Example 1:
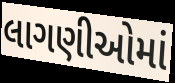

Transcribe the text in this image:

લાગણીઓમાં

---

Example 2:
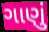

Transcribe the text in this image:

ગાણું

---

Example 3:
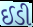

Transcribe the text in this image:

ઈડી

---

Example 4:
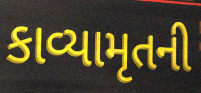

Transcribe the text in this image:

કાવ્યામૃતની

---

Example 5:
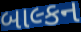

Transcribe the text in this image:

બાલ્કન